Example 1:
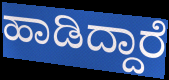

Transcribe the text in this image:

ಹಾಡಿದ್ದಾರೆ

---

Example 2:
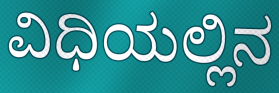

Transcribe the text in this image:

ವಿಧಿಯಲ್ಲಿನ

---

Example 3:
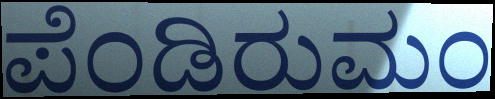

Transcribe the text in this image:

ಪೆಂಡಿರುಮಂ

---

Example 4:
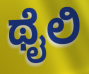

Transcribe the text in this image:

ಥೈಲಿ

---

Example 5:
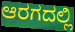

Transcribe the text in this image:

ಆರಗದಲ್ಲಿ